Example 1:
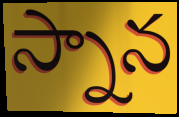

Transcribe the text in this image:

స్నాన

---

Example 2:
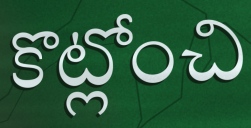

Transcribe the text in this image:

కొట్లోంచి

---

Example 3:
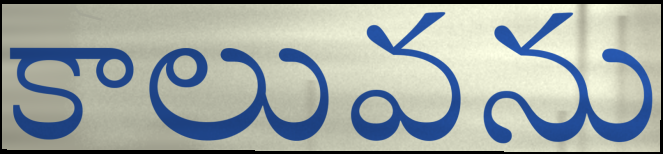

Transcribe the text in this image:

కాలువను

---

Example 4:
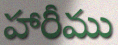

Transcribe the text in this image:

హారీము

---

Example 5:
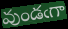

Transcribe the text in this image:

వుండఁగా